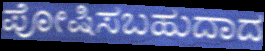
ಪೋಷಿಸಬಹುದಾದ